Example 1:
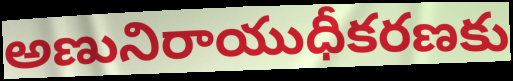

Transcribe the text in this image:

అణునిరాయుధీకరణకు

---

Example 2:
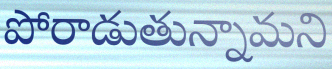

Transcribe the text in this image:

పోరాడుతున్నామని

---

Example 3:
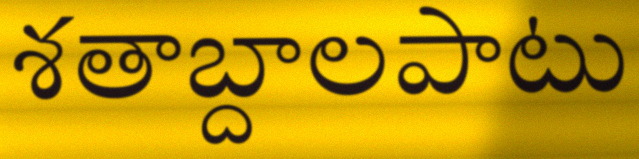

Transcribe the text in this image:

శతాబ్దాలపాటు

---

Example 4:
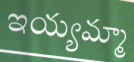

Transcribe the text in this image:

ఇయ్యమ్మా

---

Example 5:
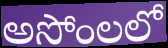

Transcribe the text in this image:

అసోంలలో